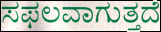
ಸಫಲವಾಗುತ್ತದೆ